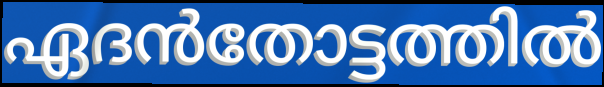
ഏദൻതോട്ടത്തിൽ